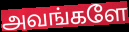
அவங்களே